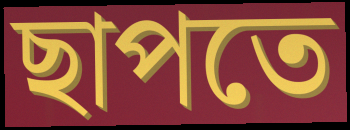
ছাপতে